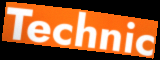
Technic